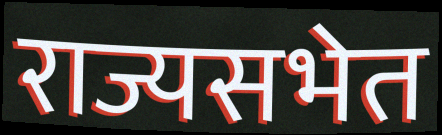
राज्यसभेत